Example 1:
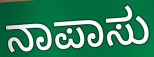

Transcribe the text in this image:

ನಾಪಾಸು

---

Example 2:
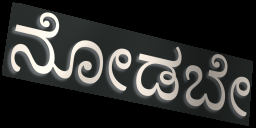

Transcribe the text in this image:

ನೋಡಬೇ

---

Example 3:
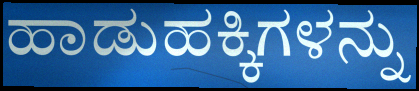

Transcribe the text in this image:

ಹಾಡುಹಕ್ಕಿಗಳನ್ನು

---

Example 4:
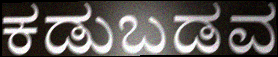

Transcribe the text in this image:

ಕಡುಬಡವ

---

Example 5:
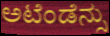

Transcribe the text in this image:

ಅಟೆಂಡೆನ್ಸು